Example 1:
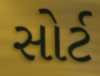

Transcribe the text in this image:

સોર્ટ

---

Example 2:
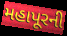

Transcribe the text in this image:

મહાપૂરની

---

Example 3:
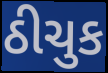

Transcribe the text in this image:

ઠીચુક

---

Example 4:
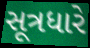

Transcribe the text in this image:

સૂત્રધારે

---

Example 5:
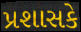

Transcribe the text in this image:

પ્રશાસકે